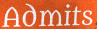
Admits